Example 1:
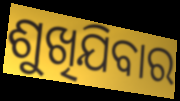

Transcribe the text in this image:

ଶୁଖିଯିବାର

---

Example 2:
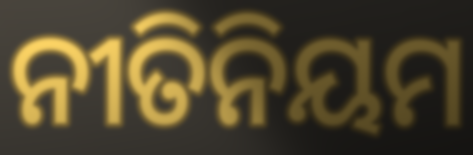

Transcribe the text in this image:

ନୀତିନିୟମ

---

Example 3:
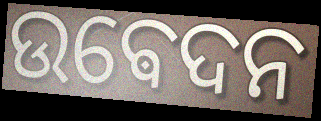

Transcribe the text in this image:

ଉଵେଦନ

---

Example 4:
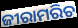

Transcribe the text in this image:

ଜୀରାମରିଚ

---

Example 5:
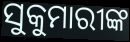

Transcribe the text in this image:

ସୁକୁମାରୀଙ୍କ